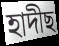
হাদীছ